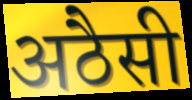
अठैसी